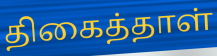
திகைத்தாள்